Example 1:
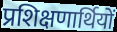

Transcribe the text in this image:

प्रशिक्षणार्थियों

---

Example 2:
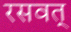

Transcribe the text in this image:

रसवत्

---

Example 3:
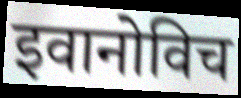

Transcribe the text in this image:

इवानोविच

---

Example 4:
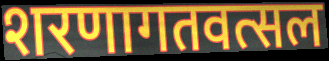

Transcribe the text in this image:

शरणागतवत्सल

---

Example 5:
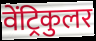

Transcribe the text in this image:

वेंट्रिकुलर